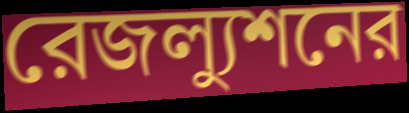
রেজল্যুশনের